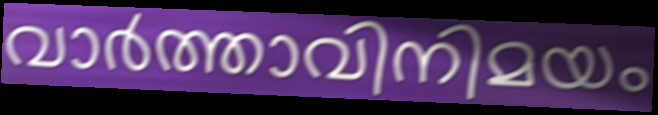
വാർത്താവിനിമയം